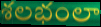
శలభంలా